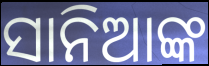
ସାନିଆଙ୍କ